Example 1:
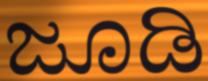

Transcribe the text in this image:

ಜೂಡಿ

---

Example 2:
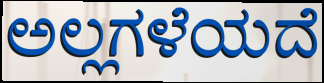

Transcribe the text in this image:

ಅಲ್ಲಗಳೆಯದೆ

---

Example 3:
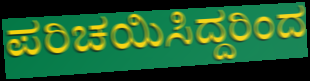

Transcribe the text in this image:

ಪರಿಚಯಿಸಿದ್ದರಿಂದ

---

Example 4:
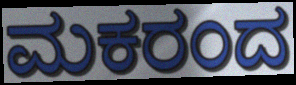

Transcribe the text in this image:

ಮಕರಂದ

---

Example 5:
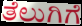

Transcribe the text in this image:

ತೆಲುಗಿಗೆ